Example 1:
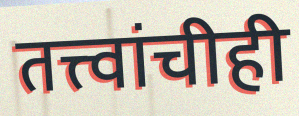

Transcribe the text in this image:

तत्त्वांचीही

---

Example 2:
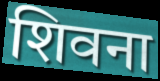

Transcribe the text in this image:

शिवना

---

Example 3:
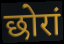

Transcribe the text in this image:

छोरां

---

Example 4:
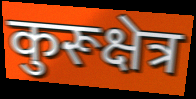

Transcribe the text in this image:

कुरूक्षेत्र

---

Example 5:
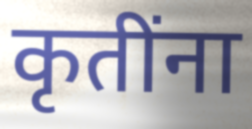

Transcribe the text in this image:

कृतींना